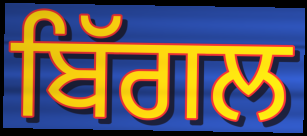
ਬਿੱਗਲ